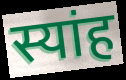
स्यांह